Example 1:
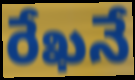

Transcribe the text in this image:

రేఖనే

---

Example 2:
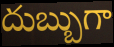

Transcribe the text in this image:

దుబ్బుగా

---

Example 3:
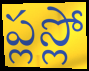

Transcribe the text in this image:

ప్లస్లో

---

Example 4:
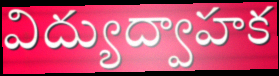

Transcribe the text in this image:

విద్యుద్వాహక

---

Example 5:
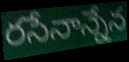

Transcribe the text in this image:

రసేనాన్నేన